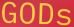
GODs